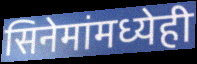
सिनेमांमध्येही